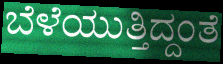
ಬೆಳೆಯುತ್ತಿದ್ದಂತೆ